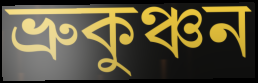
ভ্রুকুঞ্চন